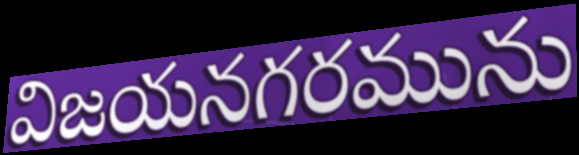
విజయనగరమును